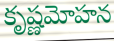
కృష్ణమోహన